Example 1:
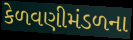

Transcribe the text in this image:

કેળવણીમંડળના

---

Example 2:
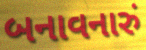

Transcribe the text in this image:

બનાવનારું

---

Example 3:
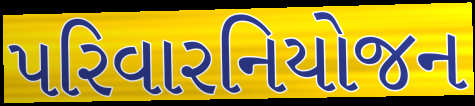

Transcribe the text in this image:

પરિવારનિયોજન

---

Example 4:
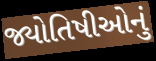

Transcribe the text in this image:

જ્યોતિષીઓનું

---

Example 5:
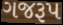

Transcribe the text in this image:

ગજરૂપ